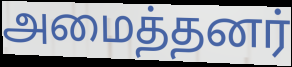
அமைத்தனர்